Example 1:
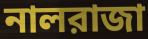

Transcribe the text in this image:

নালরাজা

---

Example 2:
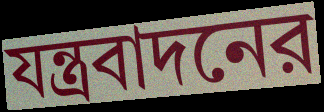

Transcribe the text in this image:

যন্ত্রবাদনের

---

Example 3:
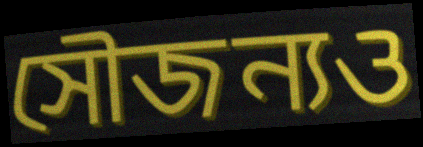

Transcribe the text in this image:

সৌজন্যও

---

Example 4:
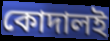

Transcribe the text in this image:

কোদালই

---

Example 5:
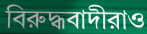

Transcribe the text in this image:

বিরুদ্ধবাদীরাও